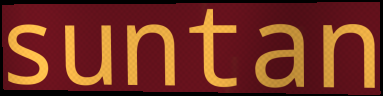
suntan